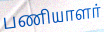
பணியாளர்